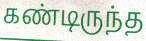
கண்டிருந்த